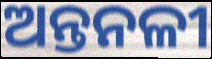
ଅନ୍ତନଳୀ